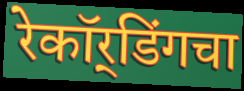
रेकॉर्डिंगचा